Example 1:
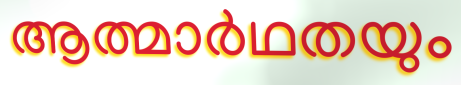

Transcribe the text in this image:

ആത്മാർഥതയും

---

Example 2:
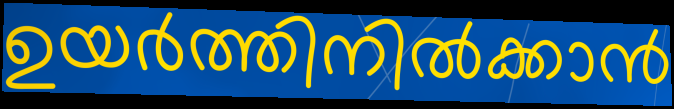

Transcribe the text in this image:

ഉയർത്തിനിൽക്കാൻ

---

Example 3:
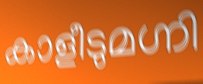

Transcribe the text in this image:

കാളീടുമഗ്നി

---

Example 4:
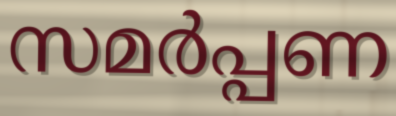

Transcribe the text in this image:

സമർപ്പണ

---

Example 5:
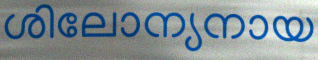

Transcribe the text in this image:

ശിലോന്യനായ